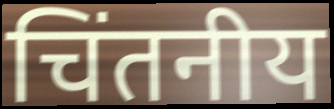
चिंतनीय